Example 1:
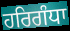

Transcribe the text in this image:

ਹਰਿਗੰਧਾ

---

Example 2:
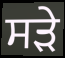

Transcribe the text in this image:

ਸੜੇ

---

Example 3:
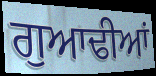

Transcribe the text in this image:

ਗੁਆਢੀਆਂ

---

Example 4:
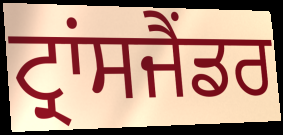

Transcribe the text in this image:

ਟ੍ਰਾਂਸਜੈਂਡਰ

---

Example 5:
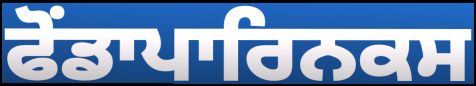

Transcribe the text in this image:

ਫੋਂਡਾਪਾਰਿਨਕਸ